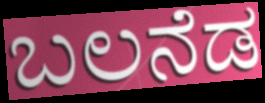
ಬಲನೆಡ